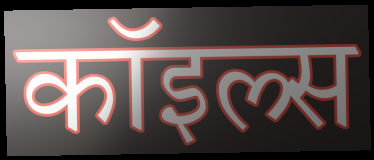
कॉइल्स